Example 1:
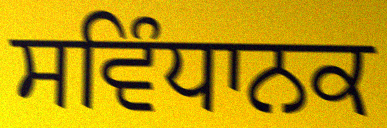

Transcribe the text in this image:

ਸਵਿੰਧਾਨਕ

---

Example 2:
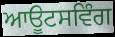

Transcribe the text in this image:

ਆਊਟਸਵਿੰਗ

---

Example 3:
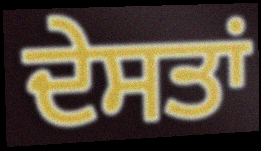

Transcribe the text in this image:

ਦੇਸਤਾਂ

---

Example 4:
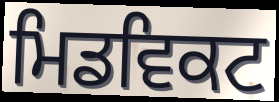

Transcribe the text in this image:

ਮਿਡਵਿਕਟ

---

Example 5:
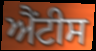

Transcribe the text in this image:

ਐਂਟੀਸ